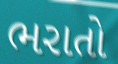
ભરાતો